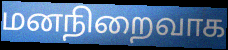
மனநிறைவாக